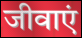
जीवाएं